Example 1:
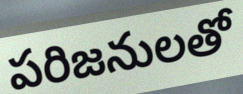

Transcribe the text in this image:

పరిజనులతో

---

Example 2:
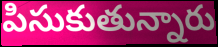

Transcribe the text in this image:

పిసుకుతున్నారు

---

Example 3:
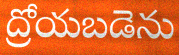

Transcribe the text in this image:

ద్రోయబడెను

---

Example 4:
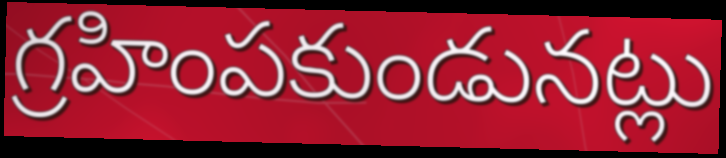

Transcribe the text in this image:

గ్రహింపకుండునట్లు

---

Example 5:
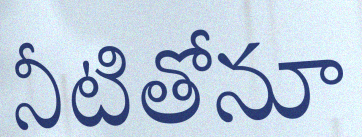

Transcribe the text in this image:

నీటితోనూ